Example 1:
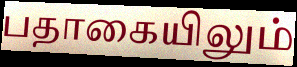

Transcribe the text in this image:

பதாகையிலும்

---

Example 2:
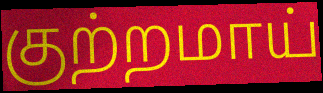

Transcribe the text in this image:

குற்றமாய்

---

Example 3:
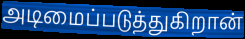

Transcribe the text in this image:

அடிமைப்படுத்துகிறான்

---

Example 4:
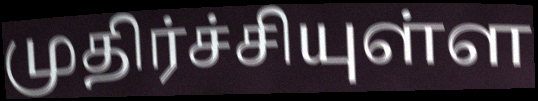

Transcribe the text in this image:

முதிர்ச்சியுள்ள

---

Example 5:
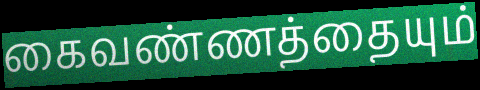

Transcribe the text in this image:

கைவண்ணத்தையும்